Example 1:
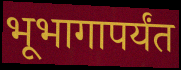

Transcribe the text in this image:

भूभागापर्यंत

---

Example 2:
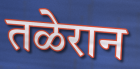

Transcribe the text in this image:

तळेरान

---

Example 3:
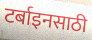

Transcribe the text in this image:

टर्बाइनसाठी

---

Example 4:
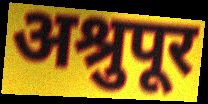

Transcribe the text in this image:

अश्रुपूर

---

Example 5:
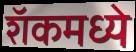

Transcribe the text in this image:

शॅकमध्ये